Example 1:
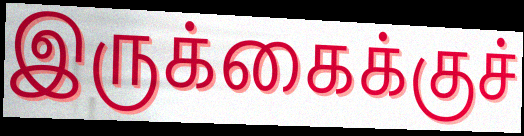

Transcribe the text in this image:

இருக்கைக்குச்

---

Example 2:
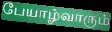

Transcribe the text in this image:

பேயாழ்வாரும்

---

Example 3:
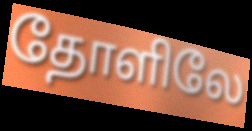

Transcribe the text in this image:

தோளிலே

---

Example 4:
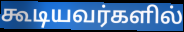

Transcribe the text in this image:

கூடியவர்களில்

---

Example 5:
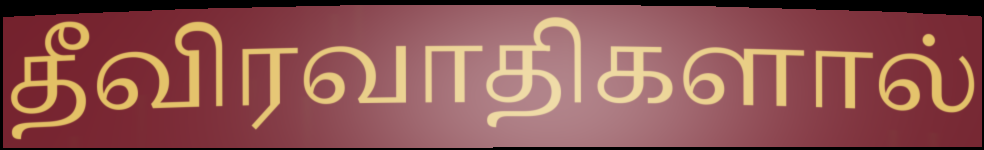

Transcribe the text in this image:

தீவிரவாதிகளால்